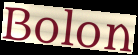
Bolon